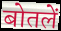
बोतलें